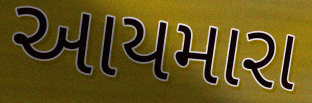
આયમારા